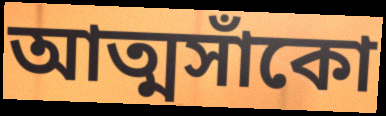
আত্মসাঁকো